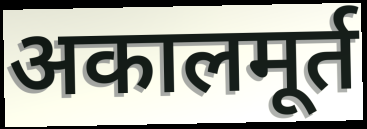
अकालमूर्त